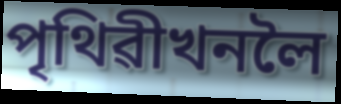
পৃথিৱীখনলৈ